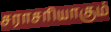
சராசரியாகும்